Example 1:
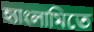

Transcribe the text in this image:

হ্যাংলামিতে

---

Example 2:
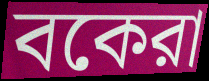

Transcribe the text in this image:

বকেরা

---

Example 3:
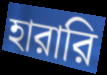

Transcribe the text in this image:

হারারি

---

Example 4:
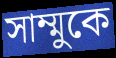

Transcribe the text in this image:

সাম্মুকে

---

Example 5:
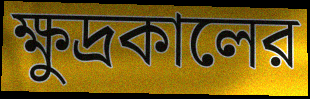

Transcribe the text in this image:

ক্ষুদ্রকালের